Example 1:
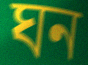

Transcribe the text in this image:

ঘন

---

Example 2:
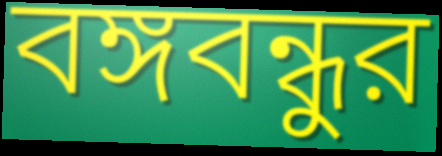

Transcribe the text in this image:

বঙ্গবন্ধুর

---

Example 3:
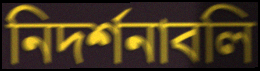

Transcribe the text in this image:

নিদর্শনাবলি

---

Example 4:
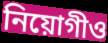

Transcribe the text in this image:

নিয়োগীও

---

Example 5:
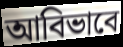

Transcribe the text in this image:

আবিভাবে